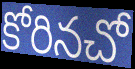
కోరినచో